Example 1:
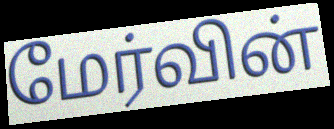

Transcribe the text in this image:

மேர்வின்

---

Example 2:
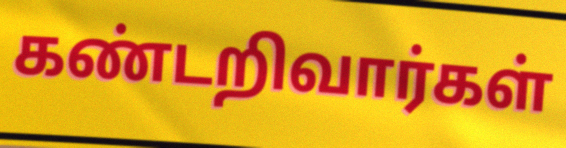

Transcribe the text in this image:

கண்டறிவார்கள்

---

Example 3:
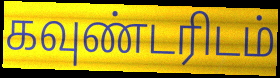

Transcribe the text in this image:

கவுண்டரிடம்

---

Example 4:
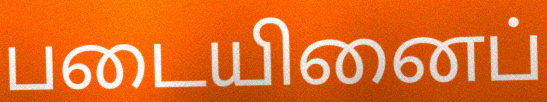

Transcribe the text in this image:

படையினைப்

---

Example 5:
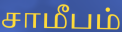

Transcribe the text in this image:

சாமீபம்